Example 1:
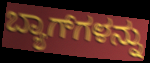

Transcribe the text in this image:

ಬ್ಯಾಗ್‌ಗಳನ್ನು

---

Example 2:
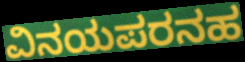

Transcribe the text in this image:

ವಿನಯಪರನಹ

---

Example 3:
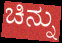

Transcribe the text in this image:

ಚಿನ್ನು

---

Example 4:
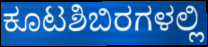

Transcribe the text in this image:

ಕೂಟಶಿಬಿರಗಳಲ್ಲಿ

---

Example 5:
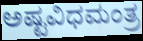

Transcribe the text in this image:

ಅಷ್ಟವಿಧಮಂತ್ರ